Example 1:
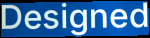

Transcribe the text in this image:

Designed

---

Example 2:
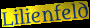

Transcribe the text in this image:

Lilienfeld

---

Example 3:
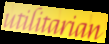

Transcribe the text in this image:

utilitarian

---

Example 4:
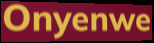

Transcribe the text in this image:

Onyenwe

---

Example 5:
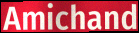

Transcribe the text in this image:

Amichand